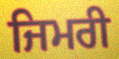
ਜਿਮਰੀ